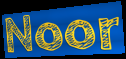
Noor